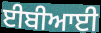
ਈਬੀਆਈ